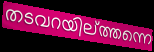
തടവറയില്ത്തന്നെ